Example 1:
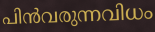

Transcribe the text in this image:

പിൻവരുന്നവിധം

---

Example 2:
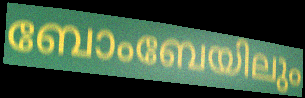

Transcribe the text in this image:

ബോംബേയിലും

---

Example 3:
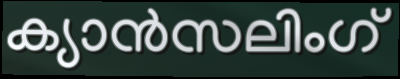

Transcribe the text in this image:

ക്യാൻസലിംഗ്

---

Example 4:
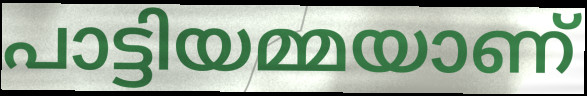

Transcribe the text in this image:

പാട്ടിയമ്മയാണ്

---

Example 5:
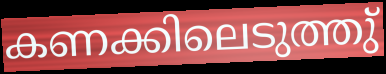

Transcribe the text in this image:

കണക്കിലെടുത്തു്